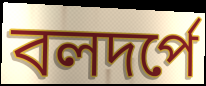
বলদর্পে